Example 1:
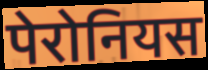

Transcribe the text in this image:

पेरोनियस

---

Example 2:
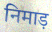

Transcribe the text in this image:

निमाड़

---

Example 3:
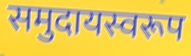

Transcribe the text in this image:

समुदायस्वरूप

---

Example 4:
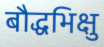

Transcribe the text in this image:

बौद्धभिक्षु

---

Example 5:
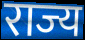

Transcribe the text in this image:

राज्‍य